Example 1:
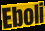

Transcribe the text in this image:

Eboli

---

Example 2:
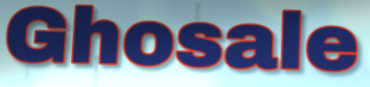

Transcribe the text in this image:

Ghosale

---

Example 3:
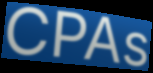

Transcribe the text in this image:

CPAs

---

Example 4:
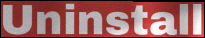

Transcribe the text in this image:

Uninstall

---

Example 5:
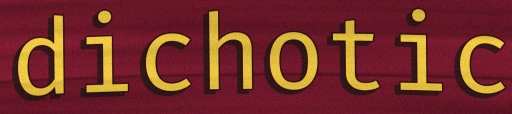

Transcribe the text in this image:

dichotic